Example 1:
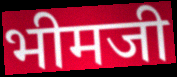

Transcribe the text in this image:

भीमजी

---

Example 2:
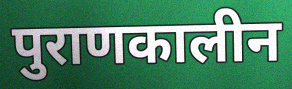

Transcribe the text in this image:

पुराणकालीन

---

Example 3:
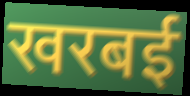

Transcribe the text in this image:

खरबई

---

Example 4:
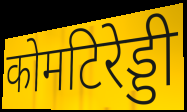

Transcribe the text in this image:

कोमटिरेड्डी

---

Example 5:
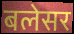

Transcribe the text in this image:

बलेसर